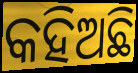
କହିଅଛି